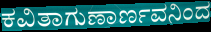
ಕವಿತಾಗುಣಾರ್ಣವನಿಂದ